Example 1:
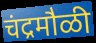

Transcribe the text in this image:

चंद्रमौळी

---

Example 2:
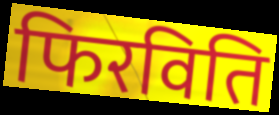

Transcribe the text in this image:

फिरविति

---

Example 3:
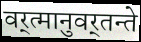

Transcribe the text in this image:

वर्त्मानुवर्तन्ते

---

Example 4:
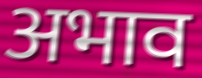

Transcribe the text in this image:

अभाव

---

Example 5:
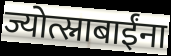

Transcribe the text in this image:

ज्योत्स्नाबाईंना